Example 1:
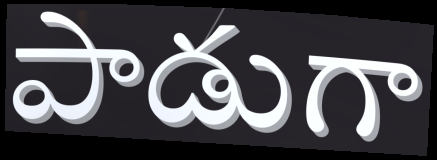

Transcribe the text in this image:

పాడుగా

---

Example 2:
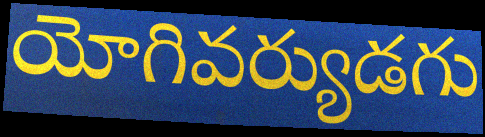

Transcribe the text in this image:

యోగివర్యుడగు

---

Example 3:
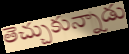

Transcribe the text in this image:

తెచ్చుకున్నాడు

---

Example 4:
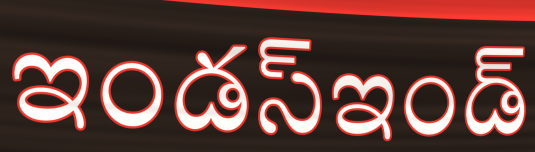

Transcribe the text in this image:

ఇండస్ఇండ్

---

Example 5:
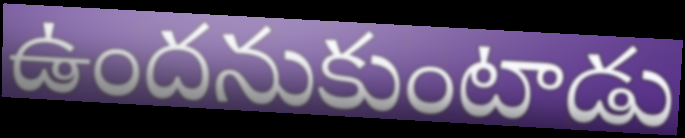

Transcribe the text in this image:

ఉందనుకుంటాడు